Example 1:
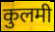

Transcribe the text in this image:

कुलमी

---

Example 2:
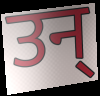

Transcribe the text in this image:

उन्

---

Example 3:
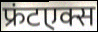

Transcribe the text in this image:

फ्रंटएक्स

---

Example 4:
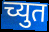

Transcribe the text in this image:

च्‍युत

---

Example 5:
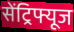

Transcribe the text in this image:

सेंट्रिफ्यूज